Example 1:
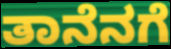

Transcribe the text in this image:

ತಾನೆನಗೆ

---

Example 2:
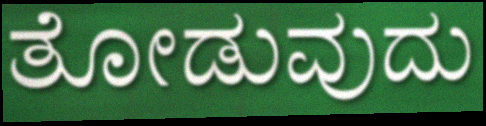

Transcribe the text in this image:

ತೋಡುವುದು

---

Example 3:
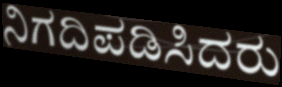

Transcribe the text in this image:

ನಿಗದಿಪಡಿಸಿದರು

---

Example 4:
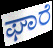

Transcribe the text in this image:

ಘಾರೆ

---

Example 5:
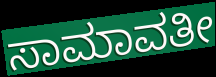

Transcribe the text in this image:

ಸಾಮಾವತೀ